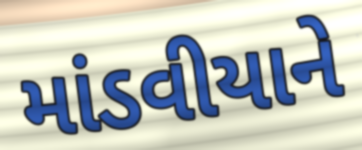
માંડવીયાને